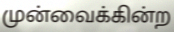
முன்வைக்கின்ற